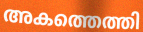
അകത്തെത്തി